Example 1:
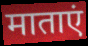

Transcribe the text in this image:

माताएं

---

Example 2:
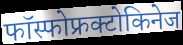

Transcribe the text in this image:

फॉस्फोफ्रक्टोकिनेज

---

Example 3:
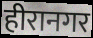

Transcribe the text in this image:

हीरानगर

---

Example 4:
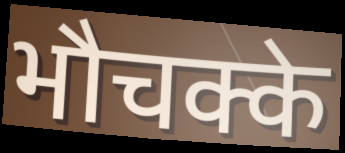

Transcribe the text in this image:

भौचक्के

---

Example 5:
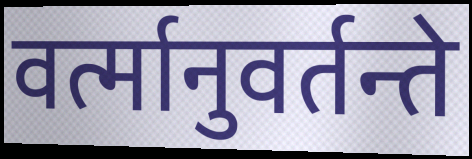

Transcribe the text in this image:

वर्त्मानुवर्तन्ते